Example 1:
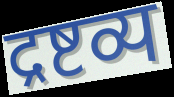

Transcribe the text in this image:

द्रष्टव्य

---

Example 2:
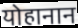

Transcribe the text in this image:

योहानान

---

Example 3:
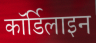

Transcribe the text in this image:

कॉर्डिलाइन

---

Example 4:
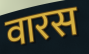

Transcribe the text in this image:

वारस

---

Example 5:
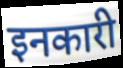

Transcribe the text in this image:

इनकारी